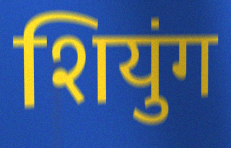
शियुंग